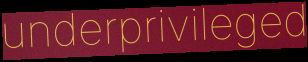
underprivileged